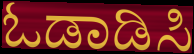
ಓಡಾಡಿಸಿ